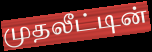
முதலீட்டின்